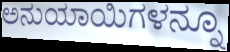
ಅನುಯಾಯಿಗಳನ್ನೂ